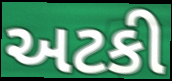
અટકી